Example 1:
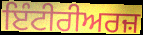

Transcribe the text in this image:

ਇੰਟੀਰੀਅਰਜ਼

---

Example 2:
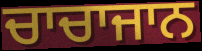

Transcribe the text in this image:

ਚਾਚਾਜਾਨ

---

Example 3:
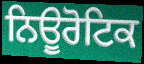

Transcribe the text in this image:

ਨਿਊਰੋਟਿਕ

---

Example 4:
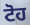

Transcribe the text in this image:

ਟੋਹ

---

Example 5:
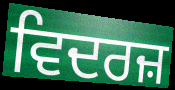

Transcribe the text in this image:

ਵਿਦਰਜ਼